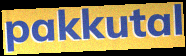
pakkutal